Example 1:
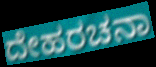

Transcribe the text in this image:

ದೇಹರಚನಾ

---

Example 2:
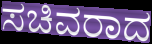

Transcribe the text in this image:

ಸಚಿವರಾದ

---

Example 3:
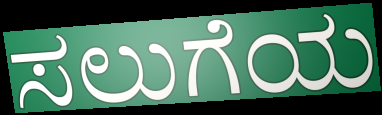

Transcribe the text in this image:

ಸಲುಗೆಯ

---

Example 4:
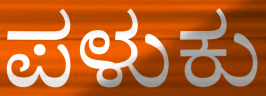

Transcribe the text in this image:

ಪಳುಕು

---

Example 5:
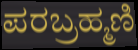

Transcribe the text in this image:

ಪರಬ್ರಹ್ಮಣಿ